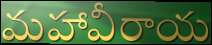
మహావీరాయ